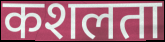
कशलता